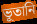
ভূতানি